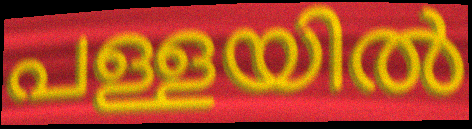
പള്ളയിൽ